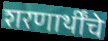
शरणार्थींचे